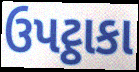
ઉપટ્ઠાકા